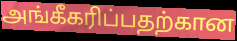
அங்கீகரிப்பதற்கான